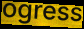
ogress